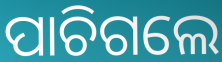
ପାଚିଗଲେ